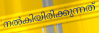
നൽകിയിരിക്കുന്നത്